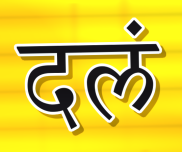
दलं